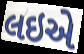
લઇએ